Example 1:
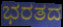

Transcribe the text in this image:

ಭರತದ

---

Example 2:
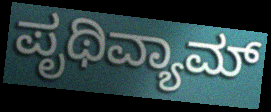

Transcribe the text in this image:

ಪೃಥಿವ್ಯಾಮ್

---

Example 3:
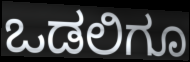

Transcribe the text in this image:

ಒಡಲಿಗೂ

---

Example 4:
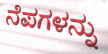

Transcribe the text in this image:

ನೆಪಗಳನ್ನು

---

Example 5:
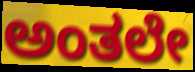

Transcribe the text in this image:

ಅಂತಲೇ